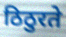
ठिठुरते